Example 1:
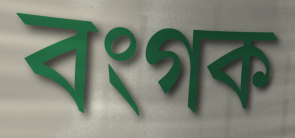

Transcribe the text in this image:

বংগক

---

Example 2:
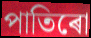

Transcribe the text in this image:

পাতিৰো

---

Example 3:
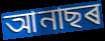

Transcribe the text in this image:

আনাছৰ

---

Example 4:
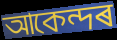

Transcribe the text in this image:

আকেন্দৰ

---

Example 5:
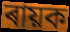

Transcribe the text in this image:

ৰায়ক